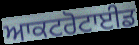
ਆਕਟਰੋਟਾਈਡ